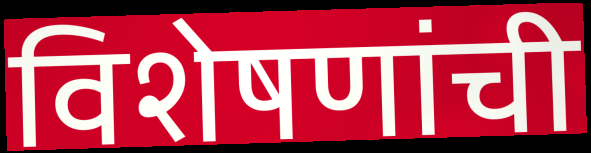
विशेषणांची